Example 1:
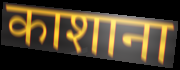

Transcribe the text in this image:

काशाना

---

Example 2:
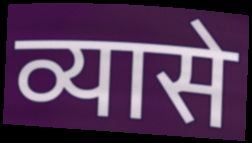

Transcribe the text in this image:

व्यासे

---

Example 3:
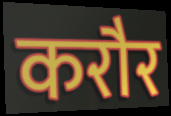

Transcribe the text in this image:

करौर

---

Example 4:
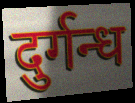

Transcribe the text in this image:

दुर्गन्ध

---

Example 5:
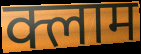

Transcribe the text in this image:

क्लाम